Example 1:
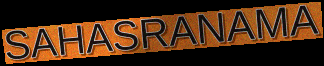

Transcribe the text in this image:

SAHASRANAMA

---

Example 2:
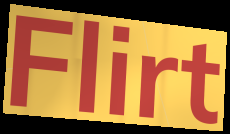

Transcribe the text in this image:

Flirt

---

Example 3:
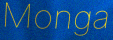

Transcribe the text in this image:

Monga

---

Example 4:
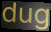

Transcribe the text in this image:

dug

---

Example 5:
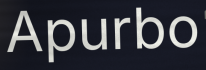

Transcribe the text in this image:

Apurbo